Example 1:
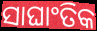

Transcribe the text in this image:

ସାଘାଂତିକ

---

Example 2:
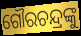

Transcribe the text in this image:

ଗୌରଚନ୍ଦ୍ରଙ୍କୁ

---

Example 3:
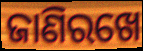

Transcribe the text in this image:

ଜାଣିରଖେ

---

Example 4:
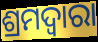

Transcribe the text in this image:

ଶ୍ରମଦ୍ଵାରା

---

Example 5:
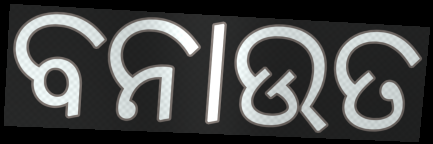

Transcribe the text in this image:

ବନାଉତ